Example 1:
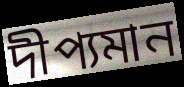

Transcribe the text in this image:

দীপ্যমান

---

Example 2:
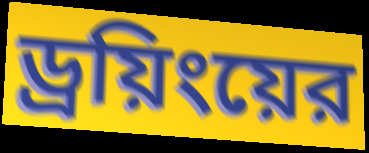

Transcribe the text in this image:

ড্রয়িংয়ের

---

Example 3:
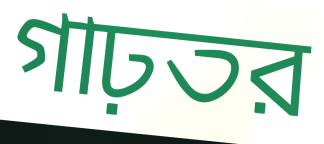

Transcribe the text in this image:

গাঢ়তর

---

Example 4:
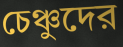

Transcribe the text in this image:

চেঞ্চুদের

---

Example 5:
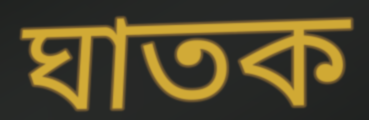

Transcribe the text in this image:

ঘাতক